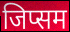
जिप्सम